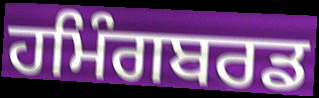
ਹਮਿੰਗਬਰਡ